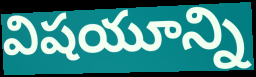
విషయూన్ని